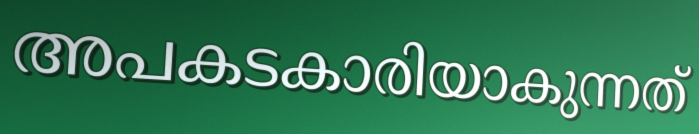
അപകടകാരിയാകുന്നത്